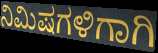
ನಿಮಿಷಗಳಿಗಾಗಿ